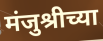
मंजुश्रीच्या